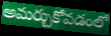
అమర్చుకోవడంలో